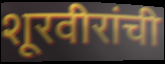
शूरवीरांची